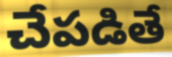
చేపడితే